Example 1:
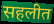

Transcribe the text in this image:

सहलीत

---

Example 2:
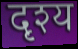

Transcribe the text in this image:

दृश्य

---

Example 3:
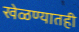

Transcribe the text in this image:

खेळण्यातही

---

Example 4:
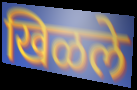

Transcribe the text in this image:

खिळले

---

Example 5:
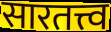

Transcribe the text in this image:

सारतत्त्व